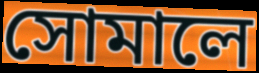
সোমালে